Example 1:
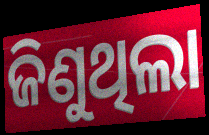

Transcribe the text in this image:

ଜିଣୁଥିଲା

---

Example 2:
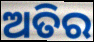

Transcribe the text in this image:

ଅତିର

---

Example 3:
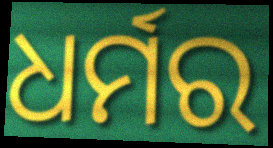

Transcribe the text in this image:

ଧର୍ମର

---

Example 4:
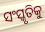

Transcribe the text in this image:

ସଂସ୍କୃତିକୁ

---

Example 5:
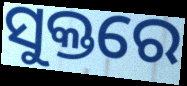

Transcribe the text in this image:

ସୁକ୍ତରେ